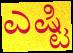
ಎಷ್ಟಿ